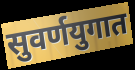
सुवर्णयुगात